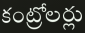
కంట్రోలర్లు